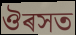
ঔৰসত